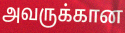
அவருக்கான